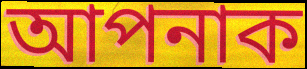
আপনাক